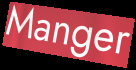
Manger